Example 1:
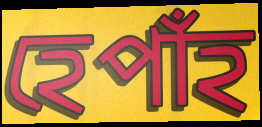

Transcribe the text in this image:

হেপাঁহ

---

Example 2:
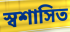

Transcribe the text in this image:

স্বশাসিত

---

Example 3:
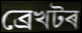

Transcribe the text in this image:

ব্ৰেখটৰ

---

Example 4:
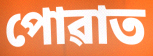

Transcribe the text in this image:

পোৱাত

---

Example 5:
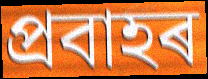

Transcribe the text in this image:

প্ৰবাহৰ